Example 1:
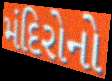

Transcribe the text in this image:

મંદિરોનો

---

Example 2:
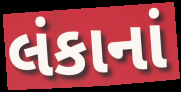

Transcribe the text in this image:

લંકાનાં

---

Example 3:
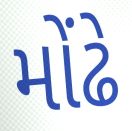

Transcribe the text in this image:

મોંઢે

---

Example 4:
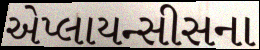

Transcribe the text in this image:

એપ્લાયન્સીસના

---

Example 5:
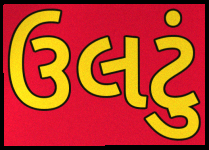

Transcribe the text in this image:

ઉલટું